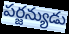
పర్జన్యుడు